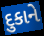
દુકાને